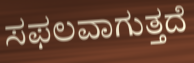
ಸಫಲವಾಗುತ್ತದೆ